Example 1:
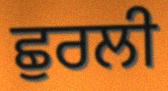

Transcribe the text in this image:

ਛੁਰਲੀ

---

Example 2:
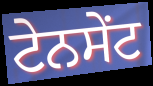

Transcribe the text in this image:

ਟੇਨਸੇਂਟ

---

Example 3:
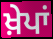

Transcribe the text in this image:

ਖ਼ੇਪਾਂ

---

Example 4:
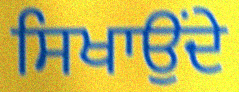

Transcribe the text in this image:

ਸਿਖਾਉਂਦੇ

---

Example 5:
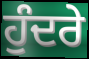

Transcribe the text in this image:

ਹੁੰਦਰੇ